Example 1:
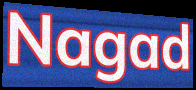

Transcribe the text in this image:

Nagad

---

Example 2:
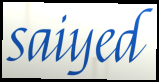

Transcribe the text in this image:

saiyed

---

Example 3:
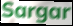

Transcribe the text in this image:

Sargar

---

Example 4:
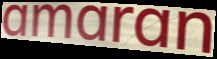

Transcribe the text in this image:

amaran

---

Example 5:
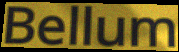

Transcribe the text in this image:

Bellum